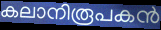
കലാനിരൂപകൻ